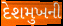
દેશમુખની